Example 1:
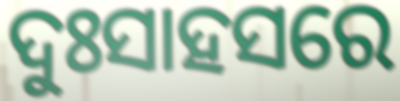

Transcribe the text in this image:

ଦୁଃସାହସରେ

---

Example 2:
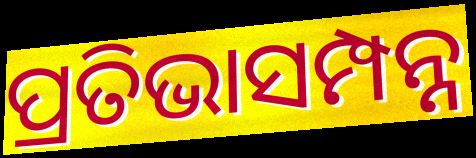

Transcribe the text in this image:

ପ୍ରତିଭାସମ୍ପନ୍ନ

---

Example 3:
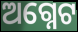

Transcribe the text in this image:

ଅଗ୍ନେଟ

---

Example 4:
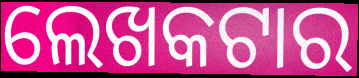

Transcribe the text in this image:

ଲେଖକଟାର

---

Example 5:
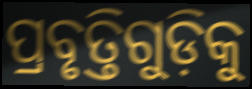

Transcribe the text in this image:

ପ୍ରବୃତ୍ତିଗୁଡ଼ିକୁ